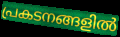
പ്രകടനങ്ങളിൽ